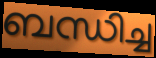
ബന്ധിച്ച